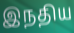
இநதிய